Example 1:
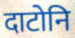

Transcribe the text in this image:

दाटोनि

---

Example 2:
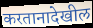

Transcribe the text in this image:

करतानादेखील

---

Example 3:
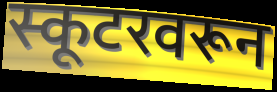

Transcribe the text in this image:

स्कूटरवरून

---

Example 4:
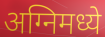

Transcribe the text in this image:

अग्निमध्ये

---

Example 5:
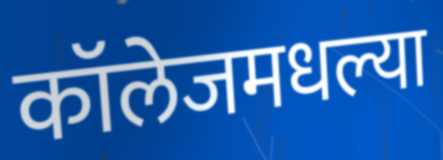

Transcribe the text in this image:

कॉलेजमधल्या